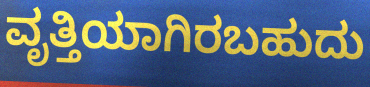
ವೃತ್ತಿಯಾಗಿರಬಹುದು